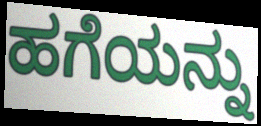
ಹಗೆಯನ್ನು